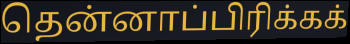
தென்னாப்பிரிக்கக்